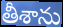
తీశాను